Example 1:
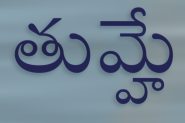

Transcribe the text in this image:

తుమ్హే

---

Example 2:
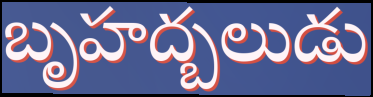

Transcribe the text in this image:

బృహద్బలుడు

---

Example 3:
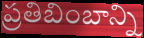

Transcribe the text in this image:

ప్రతిబింబాన్ని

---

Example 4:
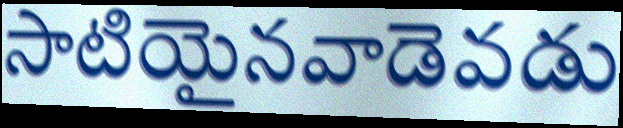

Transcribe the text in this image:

సాటియైనవాడెవడు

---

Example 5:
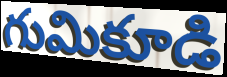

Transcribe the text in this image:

గుమికూడి